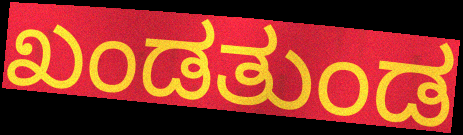
ಖಂಡತುಂಡ